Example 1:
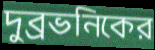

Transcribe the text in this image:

দুব্রভনিকের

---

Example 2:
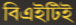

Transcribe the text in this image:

বিএইটিই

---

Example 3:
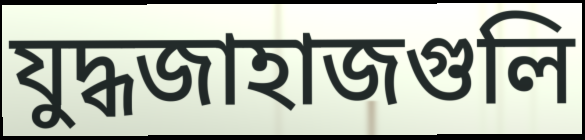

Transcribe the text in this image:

যুদ্ধজাহাজগুলি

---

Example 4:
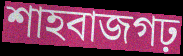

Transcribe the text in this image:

শাহবাজগঢ়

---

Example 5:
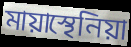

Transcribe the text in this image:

মায়াস্থেনিয়া